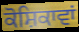
ਕੋਸ਼ਿਕਾਵਾਂ